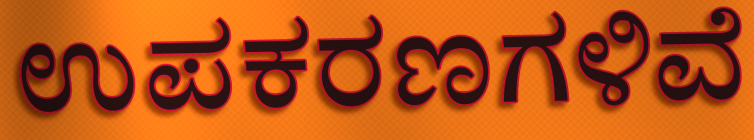
ಉಪಕರಣಗಳಿವೆ